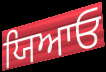
ਯਿਆਓ